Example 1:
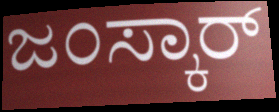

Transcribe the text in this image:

ಜಂಸ್ಕಾರ್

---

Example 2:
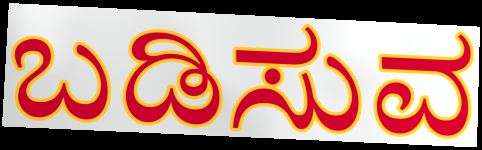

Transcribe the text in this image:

ಬಡಿಸುವ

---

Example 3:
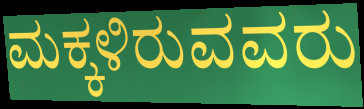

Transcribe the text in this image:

ಮಕ್ಕಳಿರುವವರು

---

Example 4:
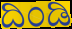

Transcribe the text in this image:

ದಿಂಡಿ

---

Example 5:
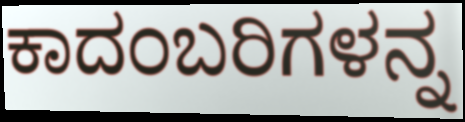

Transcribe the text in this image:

ಕಾದಂಬರಿಗಳನ್ನ